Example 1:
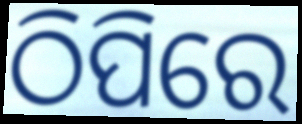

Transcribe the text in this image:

ଠିପିରେ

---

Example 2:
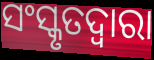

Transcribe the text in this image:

ସଂସ୍କୃତଦ୍ୱାରା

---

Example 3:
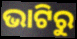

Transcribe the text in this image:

ଭାଟିରୁ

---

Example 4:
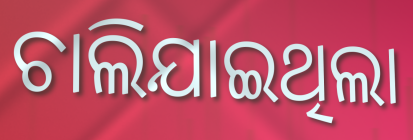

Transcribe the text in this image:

ଚାଲିଯାଇଥିଲା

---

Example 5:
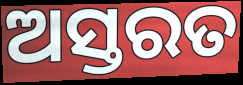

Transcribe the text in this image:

ଅସ୍ତରତ